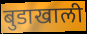
बुडाखाली